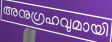
അനുഗ്രഹവുമായി